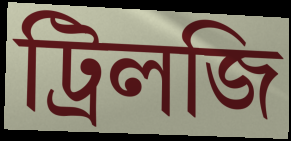
ট্রিলজি